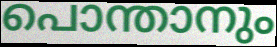
പൊന്താനും